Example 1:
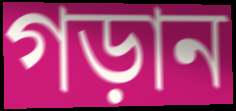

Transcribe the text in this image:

গড়ান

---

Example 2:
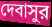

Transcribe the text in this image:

দেবাসুর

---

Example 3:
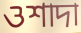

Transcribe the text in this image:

ওশাদা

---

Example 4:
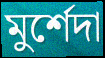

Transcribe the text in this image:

মুর্শেদা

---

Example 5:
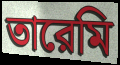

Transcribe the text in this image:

তারেমি